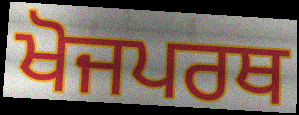
ਖੋਜਪਰਥ